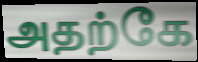
அதற்கே